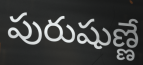
పురుషుణ్ణే